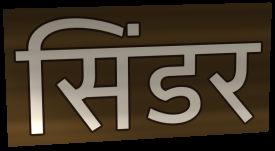
सिंडर